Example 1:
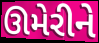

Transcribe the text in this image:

ઊમેરીને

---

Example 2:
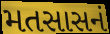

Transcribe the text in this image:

મતસાસનં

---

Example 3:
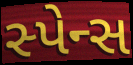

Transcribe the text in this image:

સ્પેન્સ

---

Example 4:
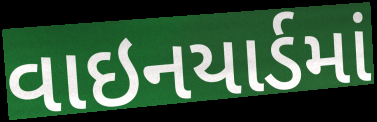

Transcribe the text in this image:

વાઇનયાર્ડમાં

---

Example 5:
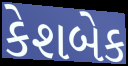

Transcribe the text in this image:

કેશબેક